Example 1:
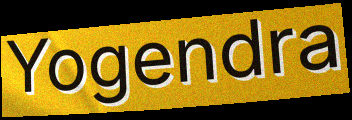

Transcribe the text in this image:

Yogendra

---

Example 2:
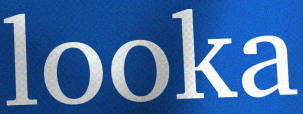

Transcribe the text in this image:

looka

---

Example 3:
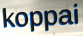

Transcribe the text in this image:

koppai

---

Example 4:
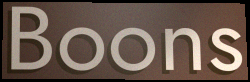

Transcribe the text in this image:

Boons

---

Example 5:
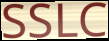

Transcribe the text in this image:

SSLC